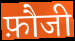
फ़ौजी